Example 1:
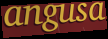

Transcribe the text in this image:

angusa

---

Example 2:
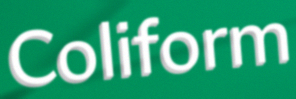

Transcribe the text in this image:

Coliform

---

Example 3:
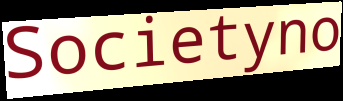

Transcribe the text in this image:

Societyno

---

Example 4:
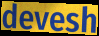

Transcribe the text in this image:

devesh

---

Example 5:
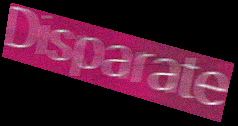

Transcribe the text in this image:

Disparate